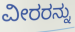
ವೀರರನ್ನು